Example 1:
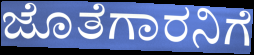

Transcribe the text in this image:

ಜೊತೆಗಾರನಿಗೆ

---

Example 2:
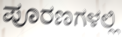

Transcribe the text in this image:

ಪೂರಣಗಳಲ್ಲಿ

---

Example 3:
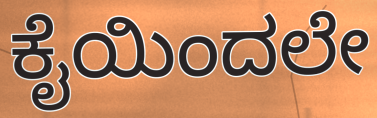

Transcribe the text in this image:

ಕೈಯಿಂದಲೇ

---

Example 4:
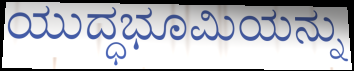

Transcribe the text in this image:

ಯುದ್ಧಭೂಮಿಯನ್ನು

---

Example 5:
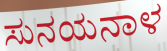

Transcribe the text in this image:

ಸುನಯನಾಳ